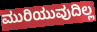
ಮುರಿಯುವುದಿಲ್ಲ